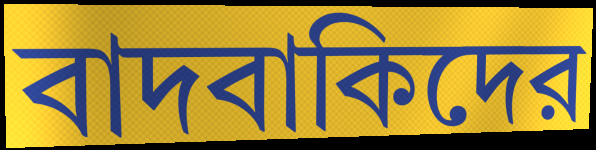
বাদবাকিদের